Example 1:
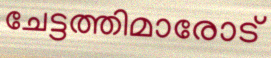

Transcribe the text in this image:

ചേട്ടത്തിമാരോട്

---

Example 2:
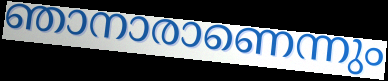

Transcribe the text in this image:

ഞാനാരാണെന്നും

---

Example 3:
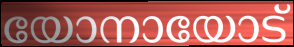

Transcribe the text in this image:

യോനായോട്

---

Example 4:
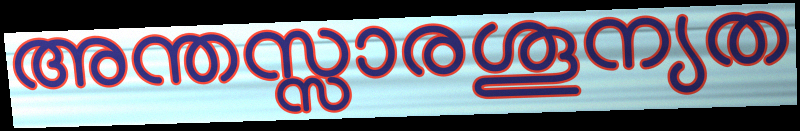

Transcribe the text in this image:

അന്തസ്സാരശൂന്യത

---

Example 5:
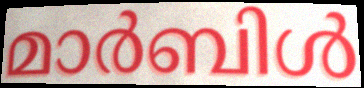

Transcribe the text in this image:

മാർബിൾ